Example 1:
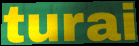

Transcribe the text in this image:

turai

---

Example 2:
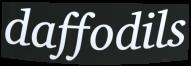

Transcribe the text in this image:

daffodils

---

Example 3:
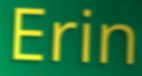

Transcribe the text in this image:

Erin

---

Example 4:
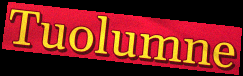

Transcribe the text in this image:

Tuolumne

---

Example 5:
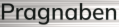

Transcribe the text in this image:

Pragnaben